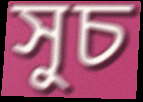
সুচ